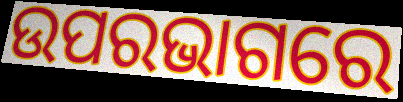
ଉପରଭାଗରେ